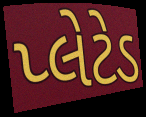
પ્લેટેડ